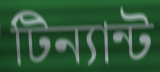
টিন্যান্ট